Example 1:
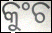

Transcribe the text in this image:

କୁଂଚ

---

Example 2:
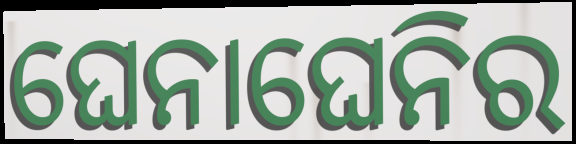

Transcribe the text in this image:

ଘେନାଘେନିର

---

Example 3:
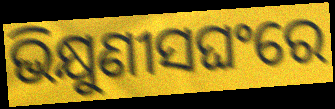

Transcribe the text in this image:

ଭିକ୍ଷୁଣୀସଘଂରେ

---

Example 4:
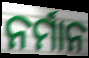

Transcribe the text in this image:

ନର୍ମାନ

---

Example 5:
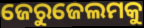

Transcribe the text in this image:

ଜେରୁଜେଲମକୁ